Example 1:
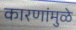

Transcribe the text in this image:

कारणांमुळे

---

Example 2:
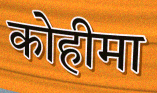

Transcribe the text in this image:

कोहीमा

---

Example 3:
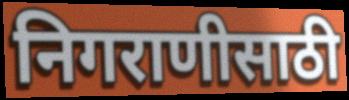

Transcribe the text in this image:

निगराणीसाठी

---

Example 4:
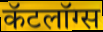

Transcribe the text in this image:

कॅटलॉग्स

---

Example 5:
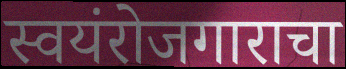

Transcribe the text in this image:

स्वयंरोजगाराचा